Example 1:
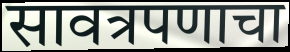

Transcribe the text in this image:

सावत्रपणाचा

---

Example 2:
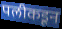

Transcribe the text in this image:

पलीकडून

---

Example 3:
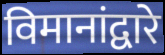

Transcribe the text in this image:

विमानांद्वारे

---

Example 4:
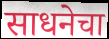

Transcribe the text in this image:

साधनेचा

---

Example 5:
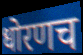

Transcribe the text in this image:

धोरणच